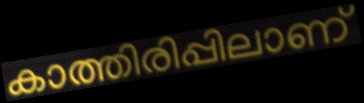
കാത്തിരിപ്പിലാണ്